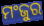
ମଂଜୁର